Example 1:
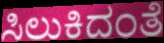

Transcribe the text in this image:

ಸಿಲುಕಿದಂತೆ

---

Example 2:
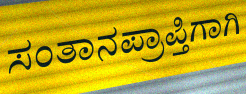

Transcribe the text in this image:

ಸಂತಾನಪ್ರಾಪ್ತಿಗಾಗಿ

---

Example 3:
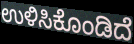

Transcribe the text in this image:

ಉಳಿಸಿಕೊಂಡಿದೆ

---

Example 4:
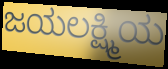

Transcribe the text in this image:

ಜಯಲಕ್ಷ್ಮಿಯ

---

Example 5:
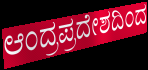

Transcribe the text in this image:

ಆಂದ್ರಪ್ರದೇಶದಿಂದ